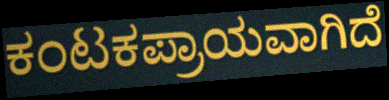
ಕಂಟಕಪ್ರಾಯವಾಗಿದೆ